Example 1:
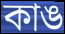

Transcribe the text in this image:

কাঙ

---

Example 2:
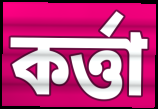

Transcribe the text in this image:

কর্ত্তা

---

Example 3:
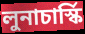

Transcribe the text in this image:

লুনাচার্স্কি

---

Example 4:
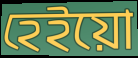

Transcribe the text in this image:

হেইয়ো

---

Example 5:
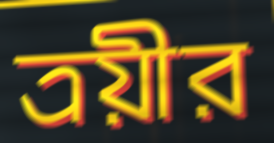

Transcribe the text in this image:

ত্রয়ীর